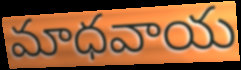
మాధవాయ